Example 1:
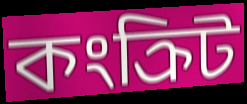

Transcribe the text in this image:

কংক্রিট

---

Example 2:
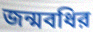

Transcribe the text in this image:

জন্মবধির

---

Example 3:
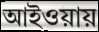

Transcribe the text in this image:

আইওয়ায়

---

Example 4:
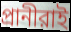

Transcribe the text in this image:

প্রানীরাই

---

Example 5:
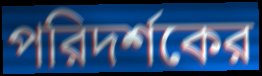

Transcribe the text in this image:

পরিদর্শকের